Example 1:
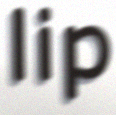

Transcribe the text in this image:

lip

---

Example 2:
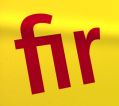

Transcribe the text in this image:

fir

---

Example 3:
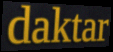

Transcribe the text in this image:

daktar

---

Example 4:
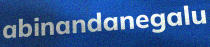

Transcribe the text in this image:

abinandanegalu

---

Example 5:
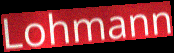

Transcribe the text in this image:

Lohmann